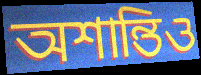
অশান্তিও